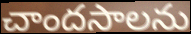
చాందసాలను